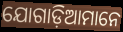
ଯୋଗାଡ଼ିଆମାନେ